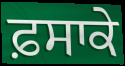
ਫ਼ਸਾਕੇ